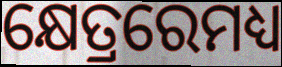
କ୍ଷେତ୍ରରେମଧ୍ୟ